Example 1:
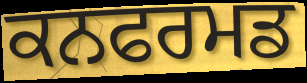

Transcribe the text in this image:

ਕਨਫਰਮਡ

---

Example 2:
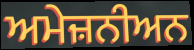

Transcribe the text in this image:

ਅਮੇਜ਼ਨੀਅਨ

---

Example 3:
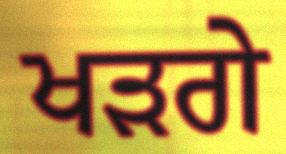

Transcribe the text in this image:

ਖੜਗੇ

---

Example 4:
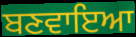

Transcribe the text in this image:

ਬਣਵਾਇਆ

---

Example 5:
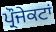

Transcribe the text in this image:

ਪ੍ਰੌਜੇਕਟਾਂ